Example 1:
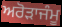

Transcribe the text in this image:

ਅਰੋੜਾਜੰਮੂ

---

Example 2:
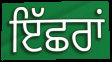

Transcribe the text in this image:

ਇੱਛਰਾਂ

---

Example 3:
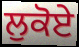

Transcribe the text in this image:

ਲੁਕੋਏ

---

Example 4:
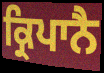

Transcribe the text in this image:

ਕ੍ਰਿਪਾਨੈ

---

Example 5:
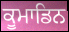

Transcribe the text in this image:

ਕੂਮਾਡਿਨ